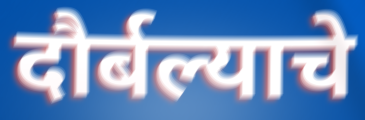
दौर्बल्याचे